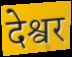
देश्वर